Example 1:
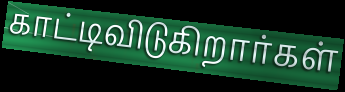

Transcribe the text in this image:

காட்டிவிடுகிறார்கள்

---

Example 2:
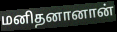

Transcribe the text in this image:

மனிதனானான்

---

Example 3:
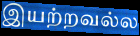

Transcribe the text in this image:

இயற்றவல்ல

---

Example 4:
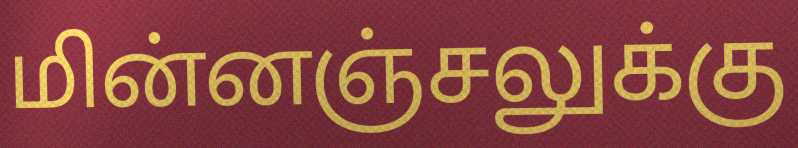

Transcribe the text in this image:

மின்னஞ்சலுக்கு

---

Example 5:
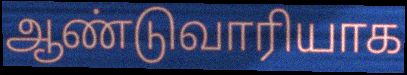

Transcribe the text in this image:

ஆண்டுவாரியாக